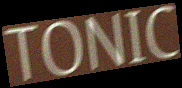
TONIC